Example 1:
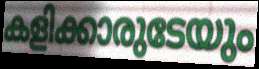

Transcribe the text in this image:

കളിക്കാരുടേയും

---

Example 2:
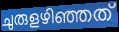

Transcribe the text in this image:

ചുരുളഴിഞ്ഞത്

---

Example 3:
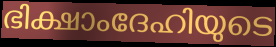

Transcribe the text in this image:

ഭിക്ഷാംദേഹിയുടെ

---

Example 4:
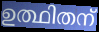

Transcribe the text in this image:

ഉത്ഥിതന്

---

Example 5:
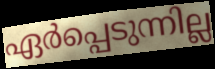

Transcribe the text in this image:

ഏർപ്പെടുന്നില്ല